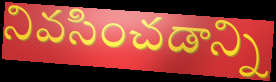
నివసించడాన్ని